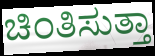
ಚಿಂತಿಸುತ್ತಾ